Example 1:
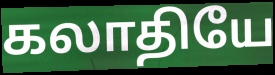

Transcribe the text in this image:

கலாதியே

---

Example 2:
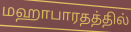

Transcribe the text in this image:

மஹாபாரதத்தில்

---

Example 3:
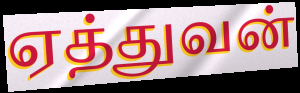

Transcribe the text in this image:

ஏத்துவன்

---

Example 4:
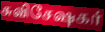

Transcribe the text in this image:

சுவிசேஷகர்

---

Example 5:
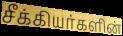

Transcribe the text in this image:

சீக்கியர்களின்